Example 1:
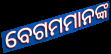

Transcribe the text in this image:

ବେଗମମାନଙ୍କ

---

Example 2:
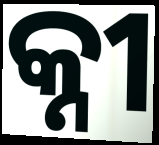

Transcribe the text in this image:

କ୍ନୀ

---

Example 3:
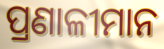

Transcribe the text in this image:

ପ୍ରଣାଳୀମାନ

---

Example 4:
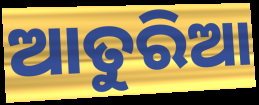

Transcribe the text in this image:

ଆତୁରିଆ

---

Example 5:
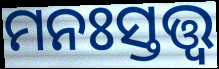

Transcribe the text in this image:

ମନଃସ୍ତତ୍ତ୍ଵ